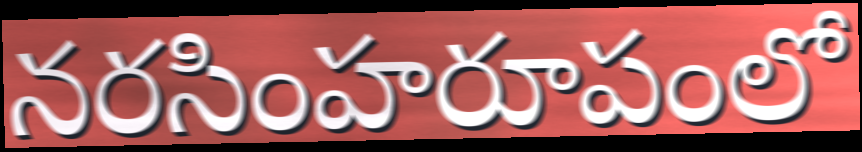
నరసింహరూపంలో